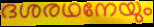
ദശരഥനേയും